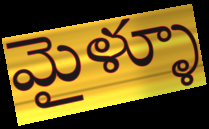
మైళ్ళూ